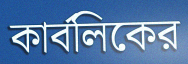
কার্বলিকের